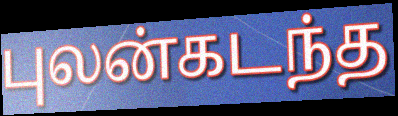
புலன்கடந்த